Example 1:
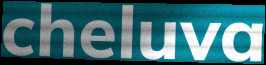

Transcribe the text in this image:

cheluva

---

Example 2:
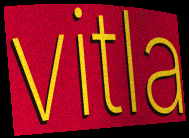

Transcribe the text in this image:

vitla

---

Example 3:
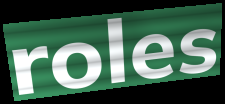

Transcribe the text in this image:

roles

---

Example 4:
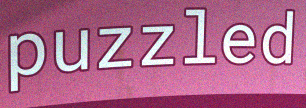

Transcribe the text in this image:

puzzled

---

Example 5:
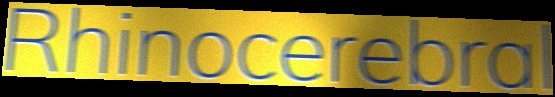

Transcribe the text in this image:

Rhinocerebral